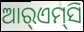
ଆର୍‌ଏମ୍‌ସି